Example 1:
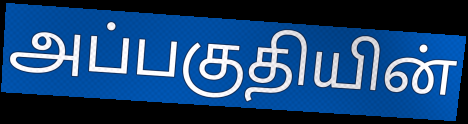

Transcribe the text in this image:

அப்பகுதியின்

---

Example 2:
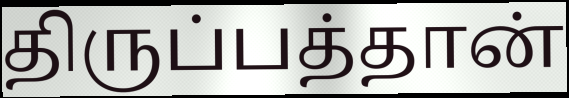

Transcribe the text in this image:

திருப்பத்தான்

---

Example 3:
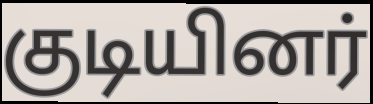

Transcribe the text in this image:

குடியினர்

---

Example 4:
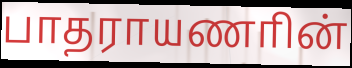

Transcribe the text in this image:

பாதராயணரின்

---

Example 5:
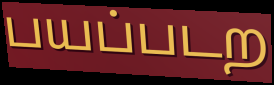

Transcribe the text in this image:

பயப்படற